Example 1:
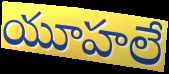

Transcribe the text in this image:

యూహలే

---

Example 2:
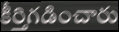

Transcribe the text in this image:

కీర్తిగడించారు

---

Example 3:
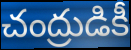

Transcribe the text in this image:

చంద్రుడికీ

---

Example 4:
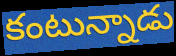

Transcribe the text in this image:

కంటున్నాడు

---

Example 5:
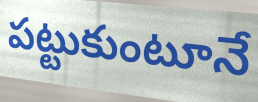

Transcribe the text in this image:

పట్టుకుంటూనే